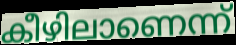
കീഴിലാണെന്ന്